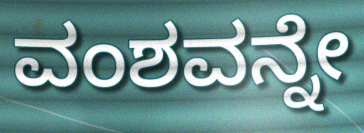
ವಂಶವನ್ನೇ